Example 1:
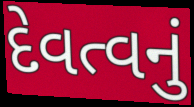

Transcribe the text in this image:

દેવત્વનું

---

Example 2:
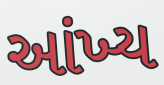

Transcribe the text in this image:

આંખ્ય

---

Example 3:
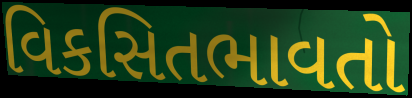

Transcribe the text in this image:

વિકસિતભાવતો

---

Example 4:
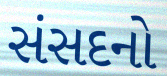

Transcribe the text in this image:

સંસદનો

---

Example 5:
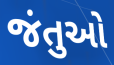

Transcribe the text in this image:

જંતુઓ